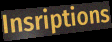
Insriptions